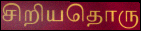
சிறியதொரு